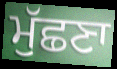
ਮੁੱਛਣਾ